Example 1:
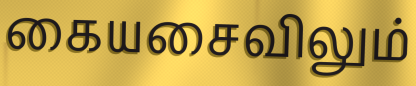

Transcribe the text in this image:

கையசைவிலும்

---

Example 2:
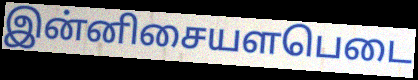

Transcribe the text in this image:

இன்னிசையளபெடை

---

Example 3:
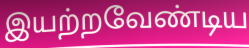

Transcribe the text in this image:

இயற்றவேண்டிய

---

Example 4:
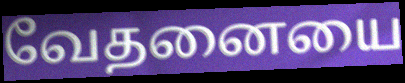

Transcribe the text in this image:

வேதனையை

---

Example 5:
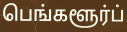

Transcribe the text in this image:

பெங்களூர்ப்